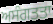
ਅਸੰਗਤਤਾ